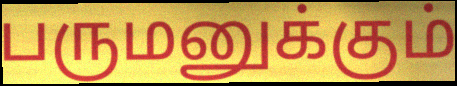
பருமனுக்கும்